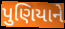
પુણિયાને